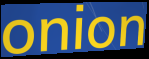
onion